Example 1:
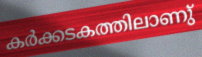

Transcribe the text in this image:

കർക്കടകത്തിലാണു്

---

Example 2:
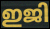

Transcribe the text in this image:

ഇജി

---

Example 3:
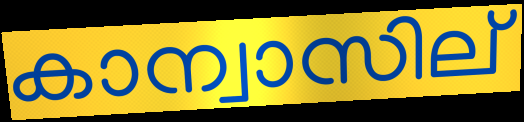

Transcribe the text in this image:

കാന്വാസില്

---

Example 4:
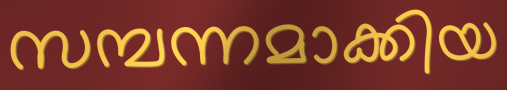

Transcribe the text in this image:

സമ്പന്നമാക്കിയ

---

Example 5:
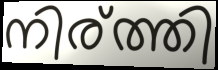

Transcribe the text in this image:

നിര്ത്തി